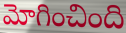
మోగించింది